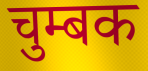
चुम्बक